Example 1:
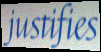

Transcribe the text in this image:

justifies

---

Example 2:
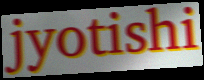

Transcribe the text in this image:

jyotishi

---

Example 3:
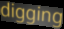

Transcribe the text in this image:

digging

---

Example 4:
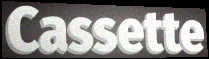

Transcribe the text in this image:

Cassette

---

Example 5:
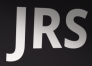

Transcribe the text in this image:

JRS